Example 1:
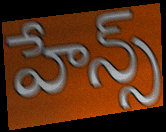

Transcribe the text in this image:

హేన్స్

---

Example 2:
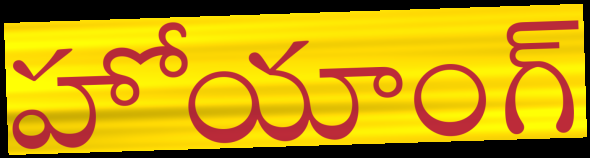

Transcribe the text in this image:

హోయాంగ్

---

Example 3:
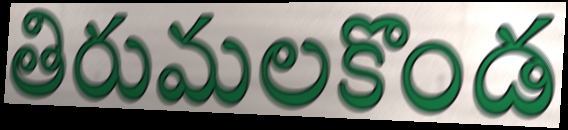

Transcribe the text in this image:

తిరుమలకొండ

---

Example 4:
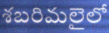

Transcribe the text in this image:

శబరిమలైలో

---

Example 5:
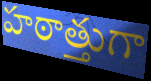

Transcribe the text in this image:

హఠాత్తుగా